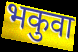
भकुवा